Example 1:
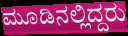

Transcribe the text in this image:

ಮೂಡಿನಲ್ಲಿದ್ದರು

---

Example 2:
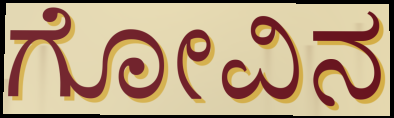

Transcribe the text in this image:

ಗೋವಿನ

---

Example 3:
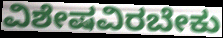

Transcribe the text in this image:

ವಿಶೇಷವಿರಬೇಕು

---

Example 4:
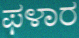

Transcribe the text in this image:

ಫಳಾರ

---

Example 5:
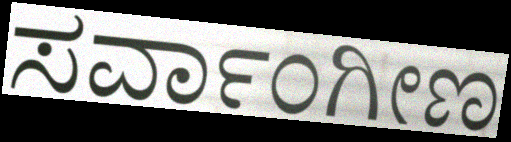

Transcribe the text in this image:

ಸರ್ವಾಂಗೀಣ